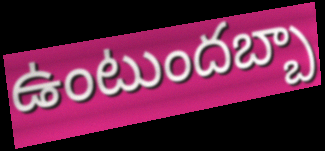
ఉంటుందబ్బా